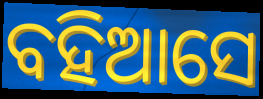
ବହିଆସେ